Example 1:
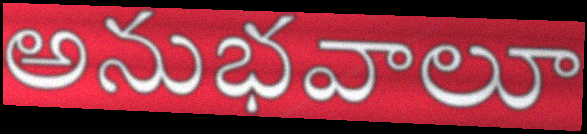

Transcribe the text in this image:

అనుభవాలూ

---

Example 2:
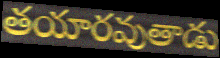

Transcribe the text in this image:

తయారవుతాడు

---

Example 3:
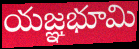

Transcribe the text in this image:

యజ్ఞభూమి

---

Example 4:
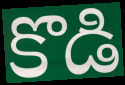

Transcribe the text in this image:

కొడి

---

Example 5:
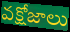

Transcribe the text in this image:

వక్షోజాలు